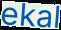
ekal